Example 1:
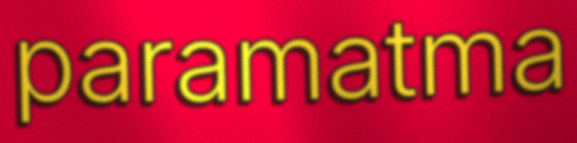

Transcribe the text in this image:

paramatma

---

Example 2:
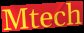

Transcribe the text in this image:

Mtech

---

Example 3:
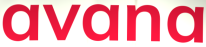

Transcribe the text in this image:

avana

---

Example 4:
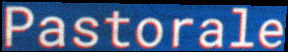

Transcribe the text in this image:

Pastorale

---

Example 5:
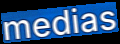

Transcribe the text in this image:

medias